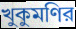
খুকুমণির